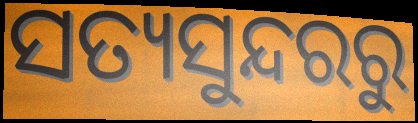
ସତ୍ୟସୁନ୍ଦରରୁ